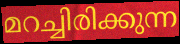
മറച്ചിരിക്കുന്ന